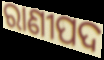
ରାଣୀପଦ